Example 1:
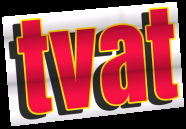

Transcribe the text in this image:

tvat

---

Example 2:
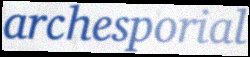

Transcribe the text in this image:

archesporial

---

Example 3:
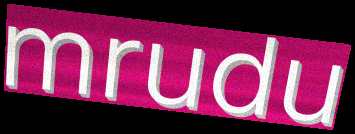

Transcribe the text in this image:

mrudu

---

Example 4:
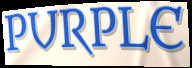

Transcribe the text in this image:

PURPLE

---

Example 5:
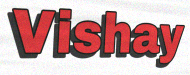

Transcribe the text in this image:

Vishay